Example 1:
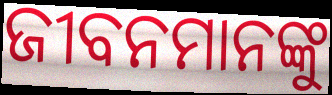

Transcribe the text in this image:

ଜୀବନମାନଙ୍କୁ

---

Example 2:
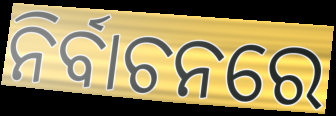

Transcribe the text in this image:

ନିର୍ବାଚନରେ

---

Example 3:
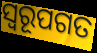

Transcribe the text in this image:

ସ୍ଵରୂପଗତ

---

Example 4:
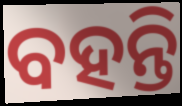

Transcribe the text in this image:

ବହନ୍ତି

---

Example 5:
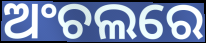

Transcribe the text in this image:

ଅଂଚଲରେ